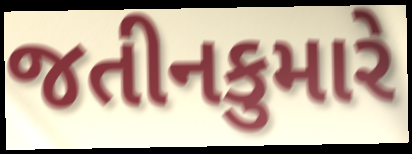
જતીનકુમારે